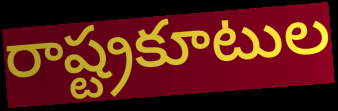
రాష్ట్రకూటుల